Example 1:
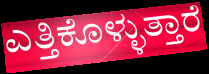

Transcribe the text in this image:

ಎತ್ತಿಕೊಳ್ಳುತ್ತಾರೆ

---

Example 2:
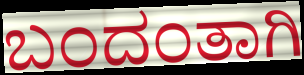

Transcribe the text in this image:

ಬಂದಂತಾಗಿ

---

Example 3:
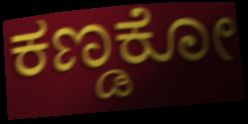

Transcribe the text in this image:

ಕಣ್ಡಕೋ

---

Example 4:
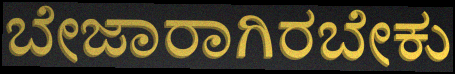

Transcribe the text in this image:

ಬೇಜಾರಾಗಿರಬೇಕು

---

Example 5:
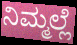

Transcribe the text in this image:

ನಿಮ್ಮಲ್ಲೆ